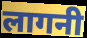
लागनी